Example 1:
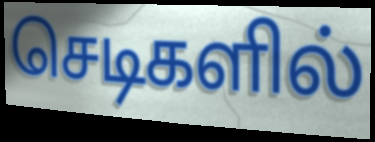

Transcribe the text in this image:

செடிகளில்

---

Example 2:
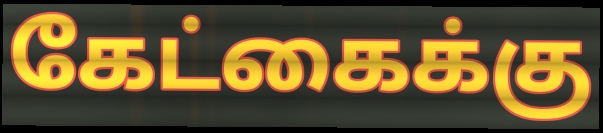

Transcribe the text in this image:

கேட்கைக்கு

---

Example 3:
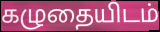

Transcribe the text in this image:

கழுதையிடம்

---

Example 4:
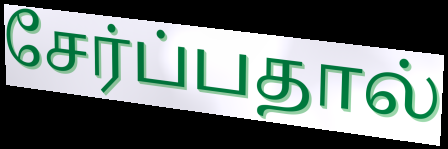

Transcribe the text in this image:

சேர்ப்பதால்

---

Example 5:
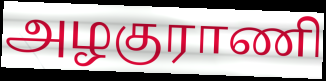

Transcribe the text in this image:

அழகுராணி